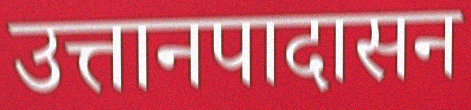
उत्तानपादासन